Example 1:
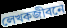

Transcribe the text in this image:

লেখকজীবনে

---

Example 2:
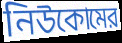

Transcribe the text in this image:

নিউকোমের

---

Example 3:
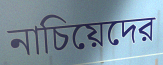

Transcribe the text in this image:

নাচিয়েদের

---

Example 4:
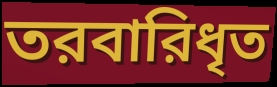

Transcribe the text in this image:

তরবারিধৃত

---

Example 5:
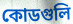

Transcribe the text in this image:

কোডগুলি